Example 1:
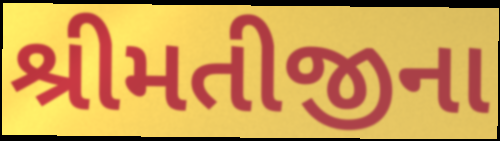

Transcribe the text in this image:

શ્રીમતીજીના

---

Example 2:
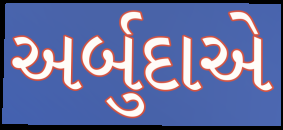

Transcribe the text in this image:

અર્બુદાએ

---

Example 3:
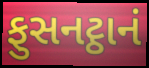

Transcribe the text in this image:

ફુસનટ્ઠાનં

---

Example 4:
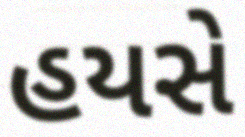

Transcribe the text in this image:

હયસે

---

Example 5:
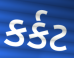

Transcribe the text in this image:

કર્કટ